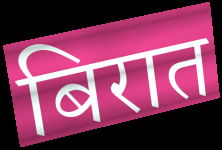
बिरात